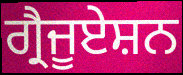
ਗ੍ਰੈਜੂਏਸ਼ਨ